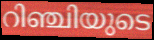
റിഞ്ചിയുടെ